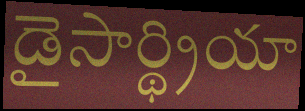
డైసార్థ్రియా